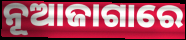
ନୂଆଜାଗାରେ